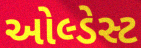
ઓલ્ડેસ્ટ